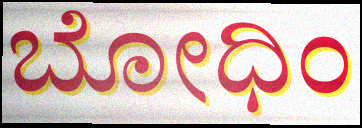
ಬೋಧಿಂ